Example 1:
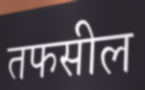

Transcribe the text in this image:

तफसील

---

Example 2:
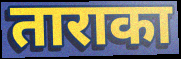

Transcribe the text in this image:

ताराका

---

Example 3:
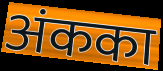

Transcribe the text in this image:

अंकका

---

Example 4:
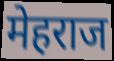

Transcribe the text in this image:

मेहराज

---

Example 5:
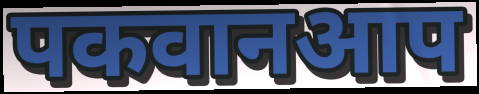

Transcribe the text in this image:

पकवानआप